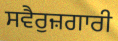
ਸਵੈਰੁਜ਼ਗਾਰੀ